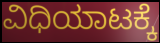
ವಿಧಿಯಾಟಕ್ಕೆ